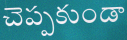
చెప్పకుండా